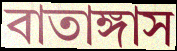
বাতাঙ্গাস